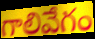
గాలివేగం